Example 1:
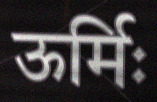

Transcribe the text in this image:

ऊर्मिः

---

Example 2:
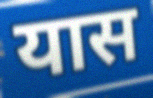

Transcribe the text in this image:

यास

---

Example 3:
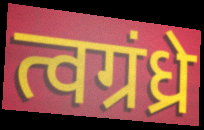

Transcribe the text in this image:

त्वग्रंध्रे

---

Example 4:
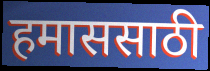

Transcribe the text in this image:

हमाससाठी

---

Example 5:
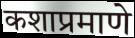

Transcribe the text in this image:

कशाप्रमाणे